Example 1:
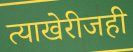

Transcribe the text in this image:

त्याखेरीजही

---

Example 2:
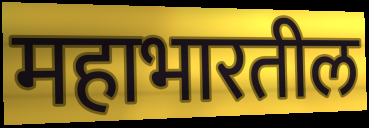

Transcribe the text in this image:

महाभारतील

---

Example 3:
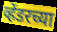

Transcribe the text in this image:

व्हेंडरच्या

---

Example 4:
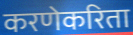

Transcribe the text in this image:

करणेकरिता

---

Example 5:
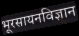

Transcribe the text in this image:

भूरसायनविज्ञान